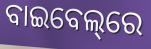
ବାଇବେଲ୍‌ରେ